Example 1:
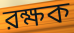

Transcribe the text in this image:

রক্ষক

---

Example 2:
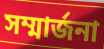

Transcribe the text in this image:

সম্মার্জনা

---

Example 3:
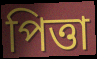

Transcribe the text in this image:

পিত্তা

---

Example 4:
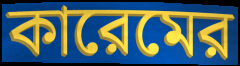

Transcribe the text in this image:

কারেমের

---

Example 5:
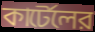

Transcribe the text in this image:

কার্টেলের